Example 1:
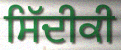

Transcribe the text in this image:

ਸਿੱਦੀਕੀ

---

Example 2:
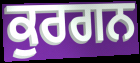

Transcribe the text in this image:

ਕੁਰਗਨ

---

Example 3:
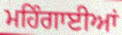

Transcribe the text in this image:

ਮਹਿੰਗਾਈਆਂ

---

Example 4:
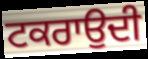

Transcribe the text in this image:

ਟਕਰਾਉਦੀ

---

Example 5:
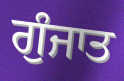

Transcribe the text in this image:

ਗੁੰਜਾਤ